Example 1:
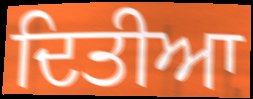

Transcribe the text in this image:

ਦਿਤੀਆ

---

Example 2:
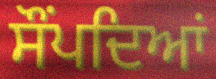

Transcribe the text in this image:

ਸੌਂਪਦਿਆਂ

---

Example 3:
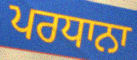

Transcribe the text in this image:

ਪਰਧਾਨਾ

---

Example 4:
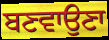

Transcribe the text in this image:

ਬਣਵਾਉਣਾ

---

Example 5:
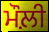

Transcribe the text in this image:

ਮੌਲ਼ੀ